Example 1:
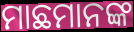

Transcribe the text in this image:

ମାଛମାନଙ୍କ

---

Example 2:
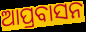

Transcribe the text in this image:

ଆପ୍ରବାସନ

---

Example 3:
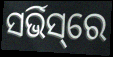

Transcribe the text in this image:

ସର୍ଭିସ୍‌ରେ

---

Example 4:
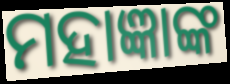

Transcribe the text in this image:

ମହାଜ୍ଞାଙ୍କ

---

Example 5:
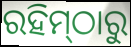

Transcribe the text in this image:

ରହିମ୍‌ଠାରୁ